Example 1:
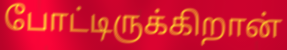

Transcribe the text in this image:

போட்டிருக்கிறான்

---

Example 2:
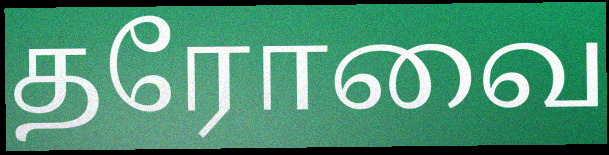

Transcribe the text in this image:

தரோவை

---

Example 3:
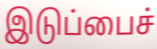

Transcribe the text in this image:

இடுப்பைச்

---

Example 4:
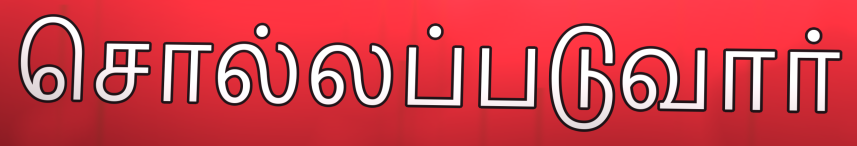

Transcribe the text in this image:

சொல்லப்படுவார்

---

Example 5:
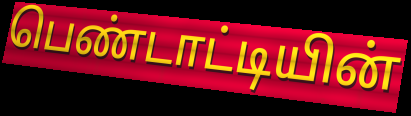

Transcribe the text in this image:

பெண்டாட்டியின்